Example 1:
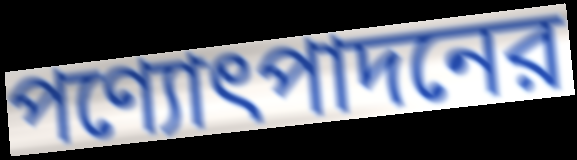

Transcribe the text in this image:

পণ্যোৎপাদনের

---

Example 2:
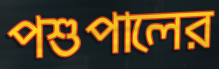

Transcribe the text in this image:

পশুপালের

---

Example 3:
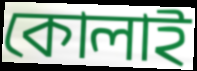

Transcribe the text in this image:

কোলাই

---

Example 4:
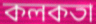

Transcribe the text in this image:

কলকতা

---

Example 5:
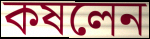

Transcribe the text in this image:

কষলেন